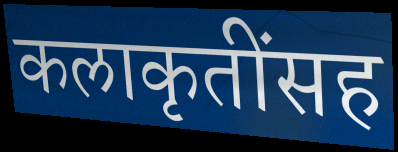
कलाकृतींसह